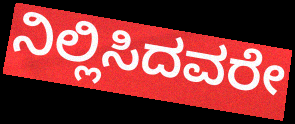
ನಿಲ್ಲಿಸಿದವರೇ